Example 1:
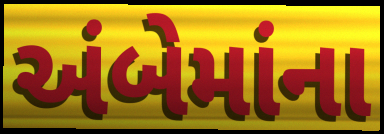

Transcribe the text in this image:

અંબેમાંના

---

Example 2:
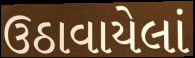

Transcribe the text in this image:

ઉઠાવાયેલાં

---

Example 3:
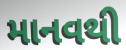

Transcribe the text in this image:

માનવથી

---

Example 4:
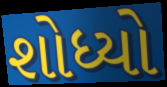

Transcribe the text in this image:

શોધ્યો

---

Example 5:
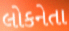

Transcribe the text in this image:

લોકનેતા